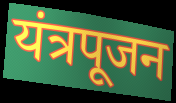
यंत्रपूजन